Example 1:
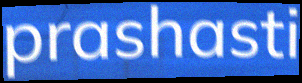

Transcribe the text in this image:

prashasti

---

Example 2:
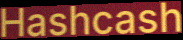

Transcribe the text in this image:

Hashcash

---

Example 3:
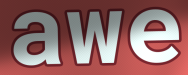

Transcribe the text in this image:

awe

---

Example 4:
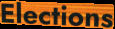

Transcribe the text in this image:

Elections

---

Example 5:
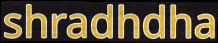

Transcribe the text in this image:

shradhdha